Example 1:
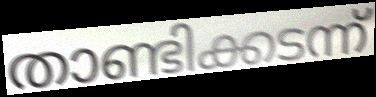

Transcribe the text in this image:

താണ്ടിക്കടന്ന്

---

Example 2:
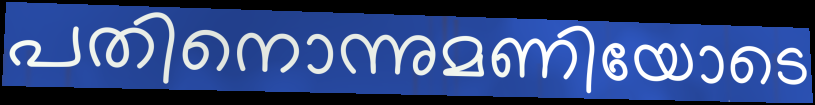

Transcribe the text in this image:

പതിനൊന്നുമണിയോടെ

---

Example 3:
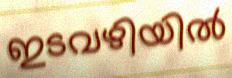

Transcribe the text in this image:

ഇടവഴിയിൽ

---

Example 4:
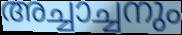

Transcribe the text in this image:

അച്ചാച്ചനും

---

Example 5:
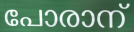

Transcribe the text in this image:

പോരാന്